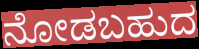
ನೋಡಬಹುದ